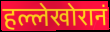
हल्लेखोरानं